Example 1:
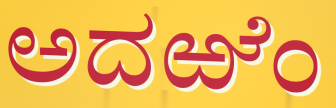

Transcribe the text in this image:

ಅದಱೆಂ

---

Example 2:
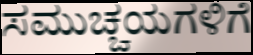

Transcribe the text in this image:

ಸಮುಚ್ಚಯಗಳಿಗೆ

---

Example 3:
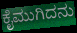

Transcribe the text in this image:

ಕೈಮುಗಿದನು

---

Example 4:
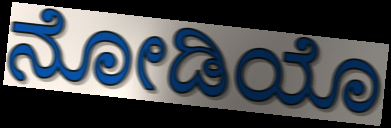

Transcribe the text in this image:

ನೋಡಿಯೊ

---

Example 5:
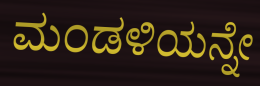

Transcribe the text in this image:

ಮಂಡಳಿಯನ್ನೇ